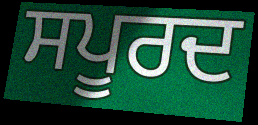
ਸਪੂਰਦ